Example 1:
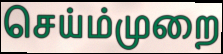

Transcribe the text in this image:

செய்ம்முறை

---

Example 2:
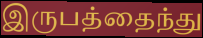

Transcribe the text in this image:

இருபத்தைந்து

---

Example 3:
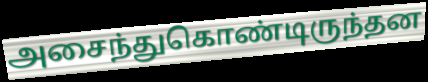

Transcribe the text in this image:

அசைந்துகொண்டிருந்தன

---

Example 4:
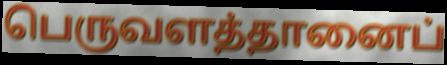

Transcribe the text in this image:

பெருவளத்தானைப்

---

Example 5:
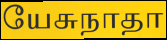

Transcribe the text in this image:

யேசுநாதா